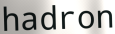
hadron